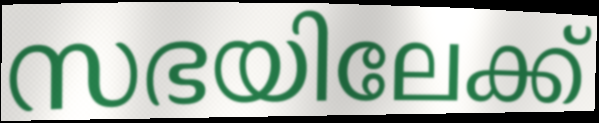
സഭയിലേക്ക്